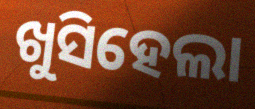
ଖୁସିହେଲା